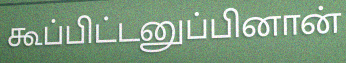
கூப்பிட்டனுப்பினான்